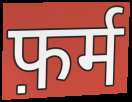
फ़र्म